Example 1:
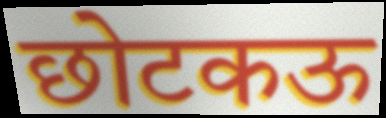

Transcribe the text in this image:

छोटकऊ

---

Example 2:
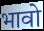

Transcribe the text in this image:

भावो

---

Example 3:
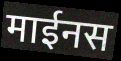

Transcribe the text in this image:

माईनस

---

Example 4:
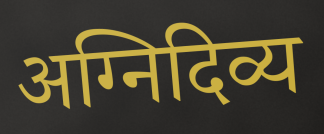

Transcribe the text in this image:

अग्निदिव्य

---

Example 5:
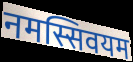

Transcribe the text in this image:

नमस्सिवयम